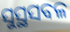
ସୁସ୍ଥସବଳ